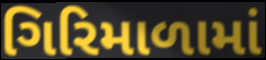
ગિરિમાળામાં